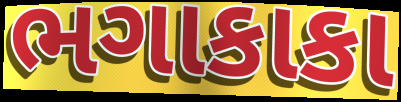
ભગાકાકા